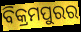
ବିକ୍ରମପୁରର